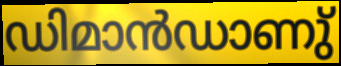
ഡിമാൻഡാണു്